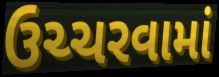
ઉચ્ચરવામાં